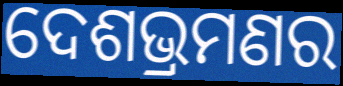
ଦେଶଭ୍ରମଣର